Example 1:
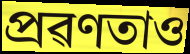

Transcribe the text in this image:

প্ৰৱণতাও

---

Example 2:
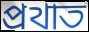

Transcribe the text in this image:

প্ৰথাত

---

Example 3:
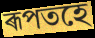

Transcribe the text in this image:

ৰূপতহে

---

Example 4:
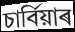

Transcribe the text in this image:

চাৰ্বিয়াৰ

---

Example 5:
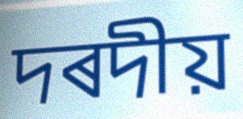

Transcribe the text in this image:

দৰদীয়